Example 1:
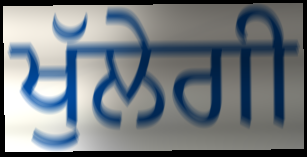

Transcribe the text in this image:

ਖੁੱਲੇਗੀ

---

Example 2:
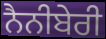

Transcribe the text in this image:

ਨੈਨੀਬੇਰੀ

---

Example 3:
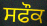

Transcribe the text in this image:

ਸਫੌਕ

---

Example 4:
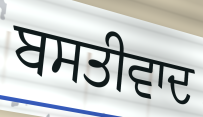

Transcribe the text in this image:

ਬਸਤੀਵਾਦ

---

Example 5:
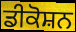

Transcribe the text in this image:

ਡੀਕੋਸ਼ਨ